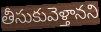
తీసుకువెళ్తానని